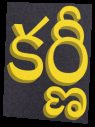
కర్ణీ